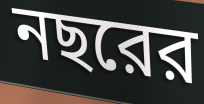
নছরের